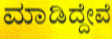
ಮಾಡಿದ್ದೇವೆ